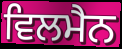
ਵਿਲਮੈਨ